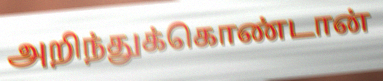
அறிந்துக்கொண்டான்